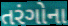
તરંગોના